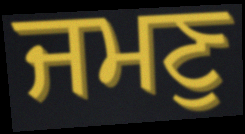
ਜਮਣੁ